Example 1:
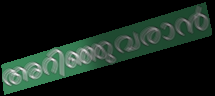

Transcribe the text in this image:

അറിഞ്ഞുവരാൻ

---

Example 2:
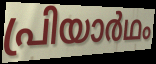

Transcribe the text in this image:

പ്രിയാർഥം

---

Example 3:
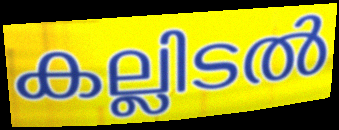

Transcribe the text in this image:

കല്ലിടൽ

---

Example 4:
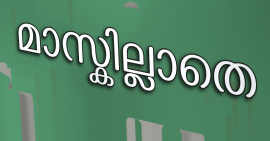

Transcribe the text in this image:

മാസ്കില്ലാതെ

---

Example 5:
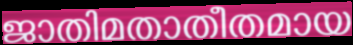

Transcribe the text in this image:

ജാതിമതാതീതമായ